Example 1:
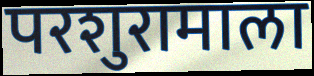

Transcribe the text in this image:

परशुरामाला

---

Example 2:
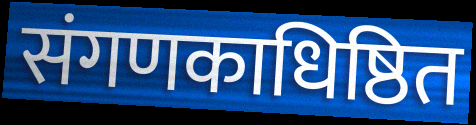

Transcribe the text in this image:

संगणकाधिष्ठित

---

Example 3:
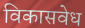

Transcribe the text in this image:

विकासवेध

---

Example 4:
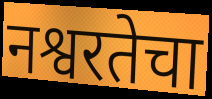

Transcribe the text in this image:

नश्वरतेचा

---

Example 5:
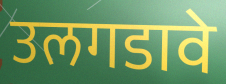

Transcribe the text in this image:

उलगडावे